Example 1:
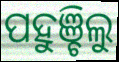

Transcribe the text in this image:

ପହୁଞ୍ଚିଲୁ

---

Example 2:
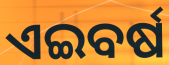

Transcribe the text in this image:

ଏଇବର୍ଷ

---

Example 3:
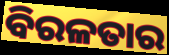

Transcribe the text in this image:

ବିରଳତାର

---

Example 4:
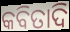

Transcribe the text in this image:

କବିତାଦି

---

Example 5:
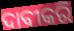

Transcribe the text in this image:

ଦାବୀକରି